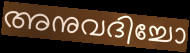
അനുവദിച്ചോ